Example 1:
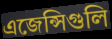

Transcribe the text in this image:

এজেন্সিগুলি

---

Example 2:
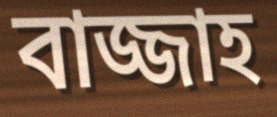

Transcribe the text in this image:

বাজ্জাহ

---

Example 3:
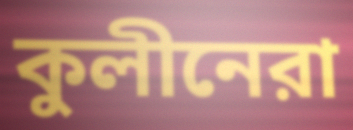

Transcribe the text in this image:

কুলীনেরা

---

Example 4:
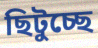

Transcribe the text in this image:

ছিটুচ্ছে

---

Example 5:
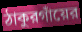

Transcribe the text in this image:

ঠাকুরগাঁয়ের